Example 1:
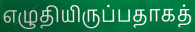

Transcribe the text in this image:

எழுதியிருப்பதாகத்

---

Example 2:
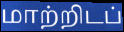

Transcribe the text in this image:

மாற்றிடப்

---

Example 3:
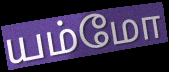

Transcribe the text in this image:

யம்மோ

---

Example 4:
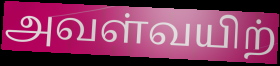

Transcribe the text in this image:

அவள்வயிற்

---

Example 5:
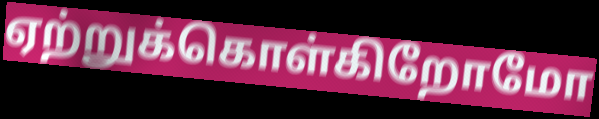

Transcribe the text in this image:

ஏற்றுக்கொள்கிறோமோ